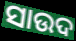
ସାଉଦ